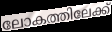
ലോകത്തിലേക്ക്